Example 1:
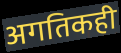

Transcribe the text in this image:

अगतिकही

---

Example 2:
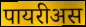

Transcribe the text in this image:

पायरीअस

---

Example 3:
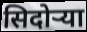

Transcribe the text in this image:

सिदोर्‍या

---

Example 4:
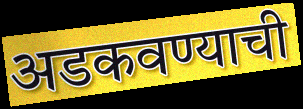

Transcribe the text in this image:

अडकवण्याची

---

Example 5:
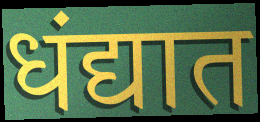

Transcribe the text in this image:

धंद्यात